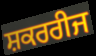
ਸ਼ਕਰਰੀਜ